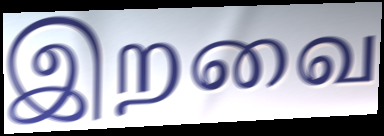
இறவை